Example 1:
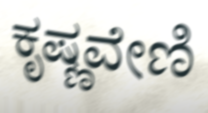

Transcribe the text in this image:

ಕೃಷ್ಣವೇಣಿ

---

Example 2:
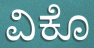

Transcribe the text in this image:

ವಿಕೊ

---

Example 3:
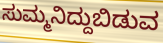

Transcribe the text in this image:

ಸುಮ್ಮನಿದ್ದುಬಿಡುವ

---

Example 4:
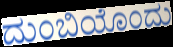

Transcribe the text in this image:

ದುಂಬಿಯೊಂದು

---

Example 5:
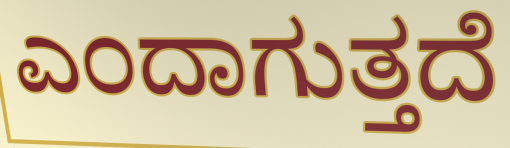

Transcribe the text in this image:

ಎಂದಾಗುತ್ತದೆ